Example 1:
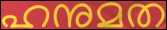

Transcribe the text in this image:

ഹനുമത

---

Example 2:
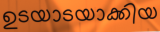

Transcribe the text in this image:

ഉടയാടയാക്കിയ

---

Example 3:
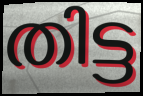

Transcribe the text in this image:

തിട്ട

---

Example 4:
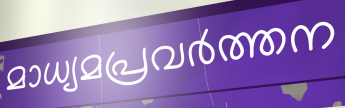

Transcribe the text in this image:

മാധ്യമപ്രവർത്തന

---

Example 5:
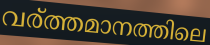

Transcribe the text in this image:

വര്ത്തമാനത്തിലെ